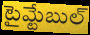
టైమ్టేబుల్